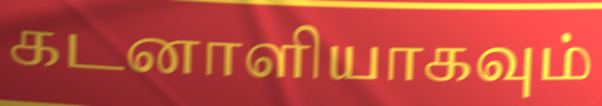
கடனாளியாகவும்